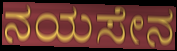
ನಯಸೇನ